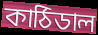
কাঠিডাল